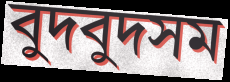
বুদবুদসম